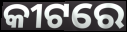
କୀଟରେ